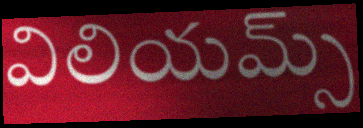
విలియమ్స్